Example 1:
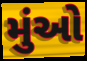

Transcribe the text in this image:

મુંઓ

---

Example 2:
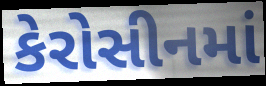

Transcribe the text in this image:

કેરોસીનમાં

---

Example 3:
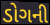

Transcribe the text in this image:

ડોગની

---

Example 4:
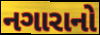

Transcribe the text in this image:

નગારાનો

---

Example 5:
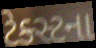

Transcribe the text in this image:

ટેક્સ્ટના